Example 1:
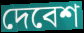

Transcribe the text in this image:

দেবেশ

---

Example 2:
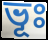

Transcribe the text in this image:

ভূঃ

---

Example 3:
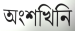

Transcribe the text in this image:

অংশখিনি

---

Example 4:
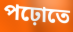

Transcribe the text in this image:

পঢ়োতে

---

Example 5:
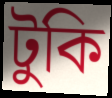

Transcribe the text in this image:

টুকি